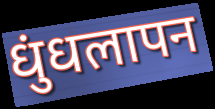
धुंधलापन